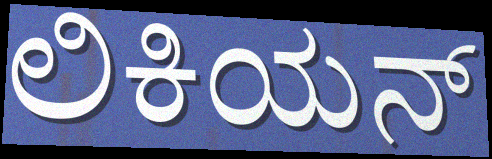
ಲಿಕಿಯನ್